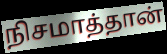
நிசமாத்தான்